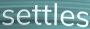
settles